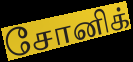
சோனிக்